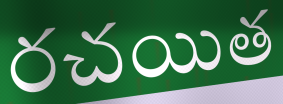
రచయిత